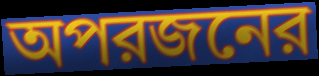
অপরজনের